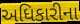
અધિકારીના